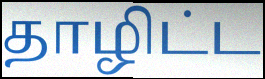
தாழிட்ட